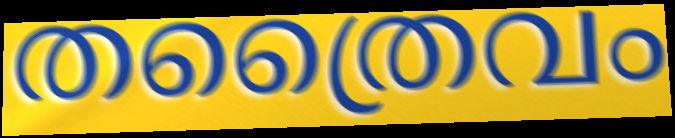
തത്രൈവം